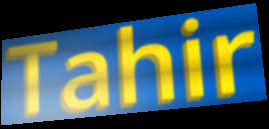
Tahir